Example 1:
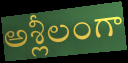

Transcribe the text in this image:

అశ్లీలంగా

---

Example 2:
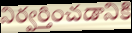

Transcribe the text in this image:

నిర్వర్తించడానికి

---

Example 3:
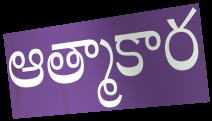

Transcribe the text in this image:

ఆత్మాకార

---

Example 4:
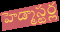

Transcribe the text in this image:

హెడ్మాస్టర్ల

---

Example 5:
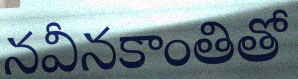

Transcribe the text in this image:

నవీనకాంతితో